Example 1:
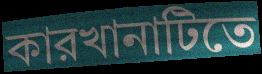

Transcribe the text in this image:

কারখানাটিতে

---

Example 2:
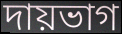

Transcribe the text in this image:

দায়ভাগ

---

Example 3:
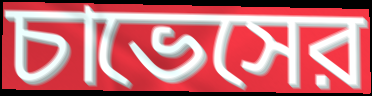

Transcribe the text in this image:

চাভেসের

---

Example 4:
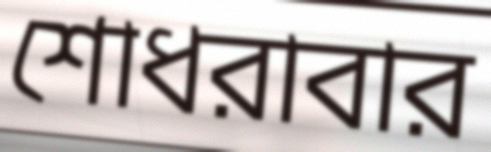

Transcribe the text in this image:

শোধরাবার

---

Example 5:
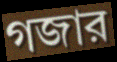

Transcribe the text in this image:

গজার